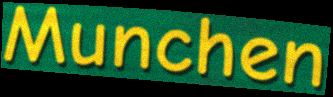
Munchen